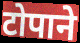
टोपाने